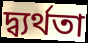
দ্ব্যর্থতা